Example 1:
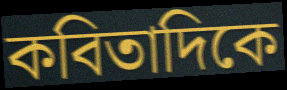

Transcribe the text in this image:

কবিতাদিকে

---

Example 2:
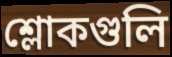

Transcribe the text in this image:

শ্লোকগুলি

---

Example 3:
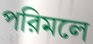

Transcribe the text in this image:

পরিমলে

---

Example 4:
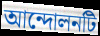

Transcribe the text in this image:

আন্দোলনটি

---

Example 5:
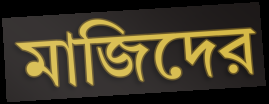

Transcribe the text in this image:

মাজিদের